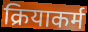
क्रियाकर्म